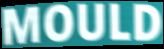
MOULD